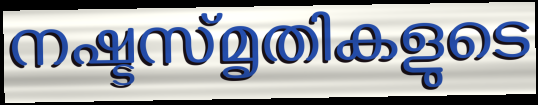
നഷ്ടസ്മൃതികളുടെ